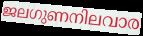
ജലഗുണനിലവാര